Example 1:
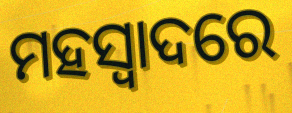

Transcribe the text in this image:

ମହସ୍ୱାଦରେ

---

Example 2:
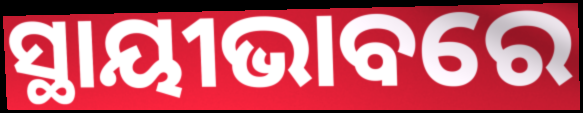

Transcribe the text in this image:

ସ୍ଥାୟୀଭାବରେ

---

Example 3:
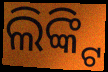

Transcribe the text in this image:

ଲିଙ୍କ୍ଟି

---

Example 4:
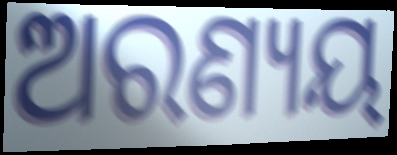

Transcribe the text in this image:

ଅରଣ୍ୟୟ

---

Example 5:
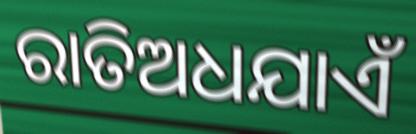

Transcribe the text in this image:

ରାତିଅଧଯାଏଁ